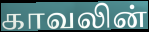
காவலின்